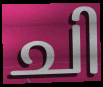
ചി